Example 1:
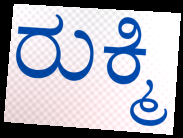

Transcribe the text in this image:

ರುಕ್ಮಿ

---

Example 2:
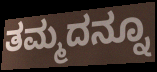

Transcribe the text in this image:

ತಮ್ಮದನ್ನೂ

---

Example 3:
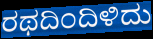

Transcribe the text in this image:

ರಥದಿಂದಿಳಿದು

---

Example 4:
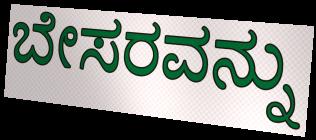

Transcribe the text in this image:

ಬೇಸರವನ್ನು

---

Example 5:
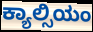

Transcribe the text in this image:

ಕ್ಯಾಲ್ಸಿಯಂ